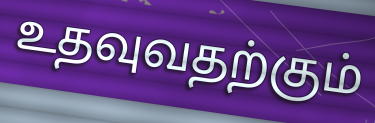
உதவுவதற்கும்